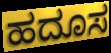
ಹದೂಸ